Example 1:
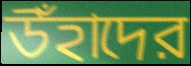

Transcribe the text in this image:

উঁহাদের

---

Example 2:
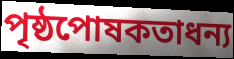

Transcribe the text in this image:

পৃষ্ঠপোষকতাধন্য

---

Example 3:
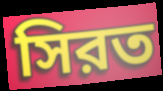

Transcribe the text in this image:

সিরত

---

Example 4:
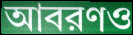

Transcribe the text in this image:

আবরণও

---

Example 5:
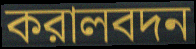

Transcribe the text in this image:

করালবদন